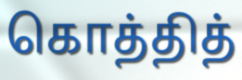
கொத்தித்